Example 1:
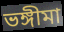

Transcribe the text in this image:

ভঙ্গীমা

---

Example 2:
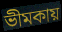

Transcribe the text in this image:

ভীমকায়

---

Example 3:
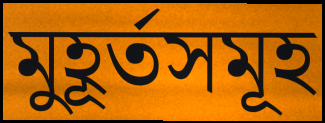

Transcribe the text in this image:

মুহূৰ্তসমূহ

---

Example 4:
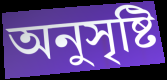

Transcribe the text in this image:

অনুসৃষ্টি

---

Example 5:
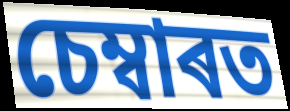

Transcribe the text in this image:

চেম্বাৰত